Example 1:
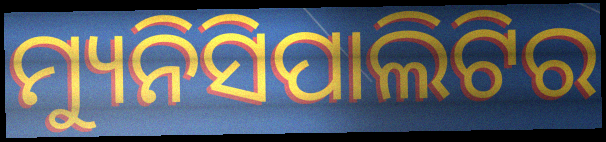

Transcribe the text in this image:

ମ୍ୟୁନିସିପାଲିଟିର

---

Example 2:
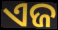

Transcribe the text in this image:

ଏଜ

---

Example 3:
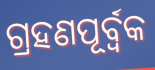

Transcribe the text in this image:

ଗ୍ରହଣପୂର୍ବ୍ବକ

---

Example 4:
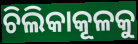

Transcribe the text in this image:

ଚିଲିକାକୂଳକୁ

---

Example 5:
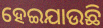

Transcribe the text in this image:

ହେଇଯାଉଛି